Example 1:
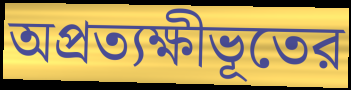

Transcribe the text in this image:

অপ্রত্যক্ষীভূতের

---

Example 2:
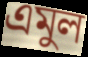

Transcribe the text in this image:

এমুল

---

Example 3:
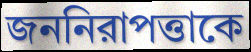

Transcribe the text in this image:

জননিরাপত্তাকে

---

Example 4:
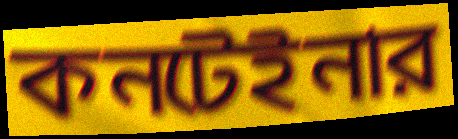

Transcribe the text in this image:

কনটেইনার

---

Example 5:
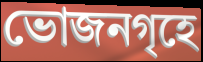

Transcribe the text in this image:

ভোজনগৃহে